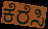
ಕೆರೆಸಿ